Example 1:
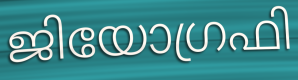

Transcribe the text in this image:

ജിയോഗ്രഫി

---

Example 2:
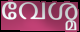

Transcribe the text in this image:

വേശ്മ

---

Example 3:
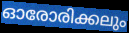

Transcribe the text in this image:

ഓരോരിക്കലും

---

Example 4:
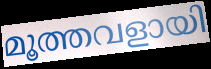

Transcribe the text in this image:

മൂത്തവളായി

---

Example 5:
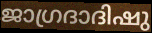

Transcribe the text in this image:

ജാഗ്രദാദിഷു